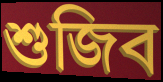
শুজিব